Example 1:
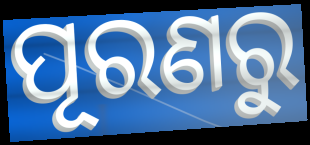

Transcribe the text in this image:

ପୂରଣରୁ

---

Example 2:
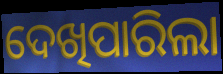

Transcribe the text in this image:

ଦେଖିପାରିଲା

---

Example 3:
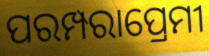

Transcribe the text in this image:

ପରମ୍ପରାପ୍ରେମୀ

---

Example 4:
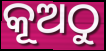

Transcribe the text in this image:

କୂଅଠୁ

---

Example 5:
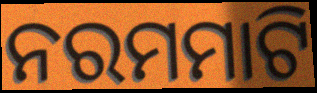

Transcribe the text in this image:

ନରମମାଟି